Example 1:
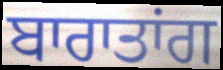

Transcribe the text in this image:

ਬਾਰਾਤਾਂਗ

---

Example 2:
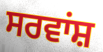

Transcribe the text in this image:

ਸਰਵਾਂਸ਼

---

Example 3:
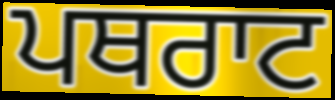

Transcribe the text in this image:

ਪਥਰਾਟ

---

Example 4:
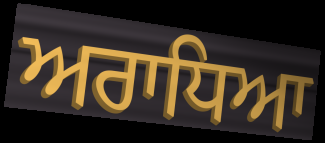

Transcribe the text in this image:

ਅਰਾਧਿਆ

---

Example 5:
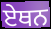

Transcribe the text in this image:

ਏਥਨ